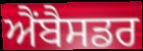
ਐਂਬੈਸਡਰ